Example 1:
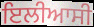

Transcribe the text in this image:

ਇਲੀਆਸੀ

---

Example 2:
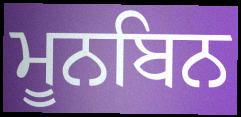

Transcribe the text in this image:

ਮੂਨਬਿਨ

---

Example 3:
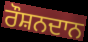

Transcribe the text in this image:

ਰੌਸ਼ਨਦਾਨ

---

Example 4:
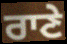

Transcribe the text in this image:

ਰਾਣੇ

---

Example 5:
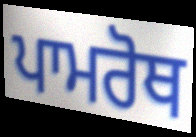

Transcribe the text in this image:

ਪਾਮਰੋਥ